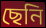
ছেনি